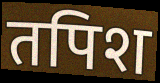
तपिश